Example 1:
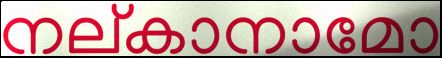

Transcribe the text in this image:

നല്കാനാമോ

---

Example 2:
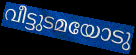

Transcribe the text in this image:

വീട്ടുടമയോടു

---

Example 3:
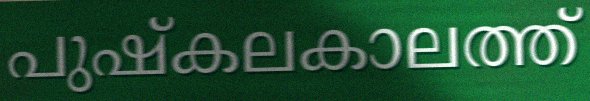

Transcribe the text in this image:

പുഷ്കലകാലത്ത്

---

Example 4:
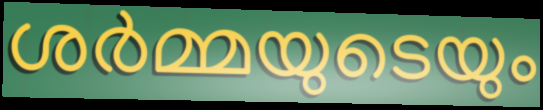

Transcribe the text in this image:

ശർമ്മയുടെയും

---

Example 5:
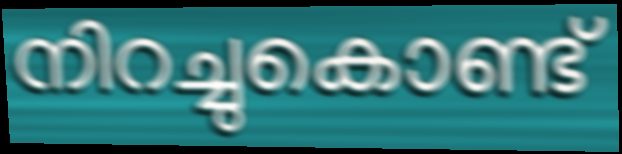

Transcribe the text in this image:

നിറച്ചുകൊണ്ട്